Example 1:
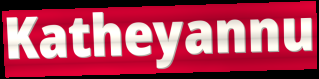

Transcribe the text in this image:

Katheyannu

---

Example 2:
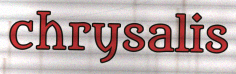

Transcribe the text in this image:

chrysalis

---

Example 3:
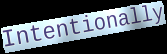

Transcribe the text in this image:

Intentionally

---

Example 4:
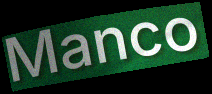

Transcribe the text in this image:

Manco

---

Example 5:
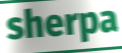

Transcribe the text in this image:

sherpa